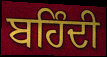
ਬਹਿੰਦੀ